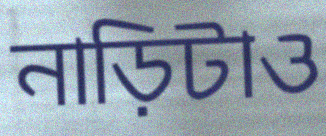
নাড়িটাও